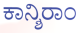
ಕಾನ್ಶಿರಾಂ